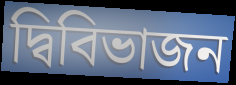
দ্বিবিভাজন